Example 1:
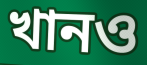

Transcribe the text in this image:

খানও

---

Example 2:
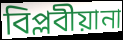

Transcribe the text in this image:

বিপ্লবীয়ানা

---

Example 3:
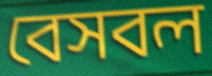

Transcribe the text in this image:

বেসবল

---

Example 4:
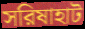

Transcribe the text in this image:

সরিষাহাট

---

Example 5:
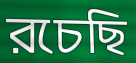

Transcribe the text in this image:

রচেছি